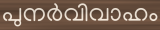
പുനർവിവാഹം